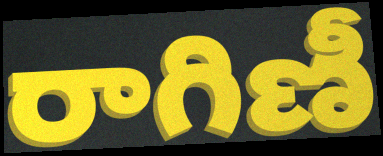
రాగిణీ